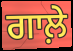
ਗਾਲ਼ੇ